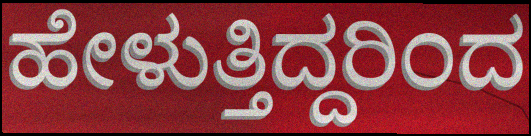
ಹೇಳುತ್ತಿದ್ದರಿಂದ